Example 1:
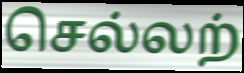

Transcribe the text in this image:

செல்லற்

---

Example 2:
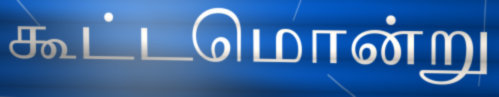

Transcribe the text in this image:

கூட்டமொன்று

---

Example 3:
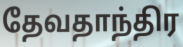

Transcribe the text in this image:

தேவதாந்திர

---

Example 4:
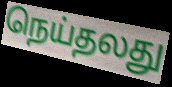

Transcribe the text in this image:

நெய்தலது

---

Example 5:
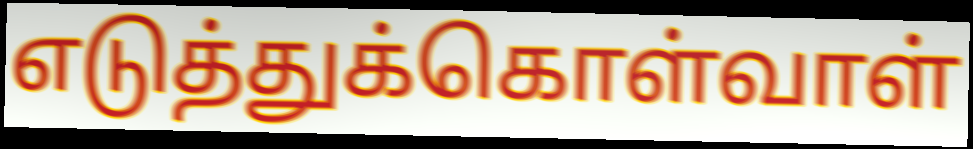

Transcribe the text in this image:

எடுத்துக்கொள்வாள்